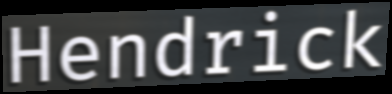
Hendrick